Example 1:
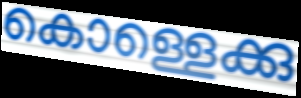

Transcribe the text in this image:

കൊള്ളെക്കു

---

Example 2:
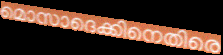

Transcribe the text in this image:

മൊസാദെക്കിനെതിരെ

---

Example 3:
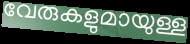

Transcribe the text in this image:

വേരുകളുമായുള്ള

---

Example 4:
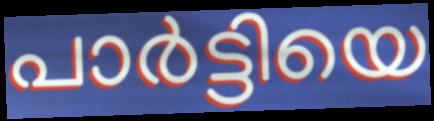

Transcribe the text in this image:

പാർട്ടിയെ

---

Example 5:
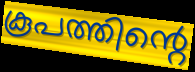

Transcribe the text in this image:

കൂപത്തിന്റെ